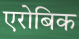
एरोबिक